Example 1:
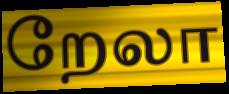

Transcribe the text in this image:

றேலா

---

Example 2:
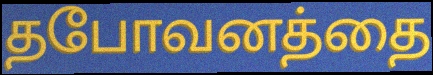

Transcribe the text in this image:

தபோவனத்தை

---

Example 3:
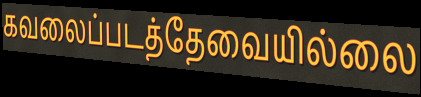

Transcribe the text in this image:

கவலைப்படத்தேவையில்லை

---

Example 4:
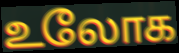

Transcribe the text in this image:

உலோக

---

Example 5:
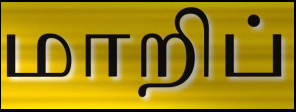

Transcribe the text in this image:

மாறிப்